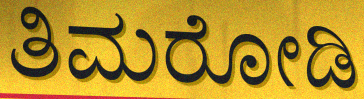
ತಿಮರೋಡಿ